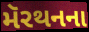
મૅરથનના